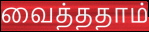
வைத்ததாம்